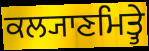
ਕਲ੍ਯਾਣਮਿਤ੍ਤੇ